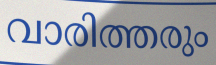
വാരിത്തരും